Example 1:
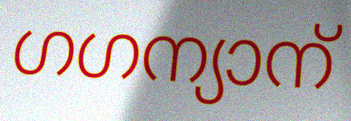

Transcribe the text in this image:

ഗഗന്യാന്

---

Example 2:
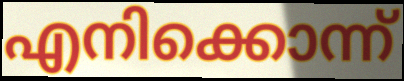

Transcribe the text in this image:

എനിക്കൊന്ന്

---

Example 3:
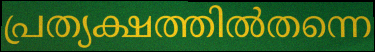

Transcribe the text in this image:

പ്രത്യക്ഷത്തിൽതന്നെ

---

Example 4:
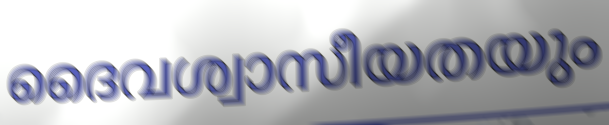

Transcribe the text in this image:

ദൈവശ്വാസീയതയും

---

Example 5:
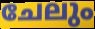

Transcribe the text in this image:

ചേലും